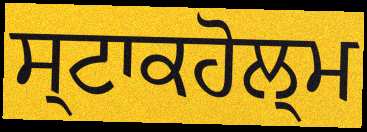
ਸ੍ਟਾਕਹੋਲ੍ਮ